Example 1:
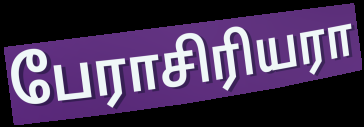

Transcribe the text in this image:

பேராசிரியரா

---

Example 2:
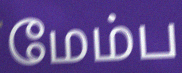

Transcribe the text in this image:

மேம்ப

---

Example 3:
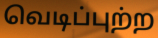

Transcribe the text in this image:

வெடிப்புற்ற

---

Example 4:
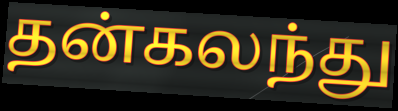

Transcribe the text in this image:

தன்கலந்து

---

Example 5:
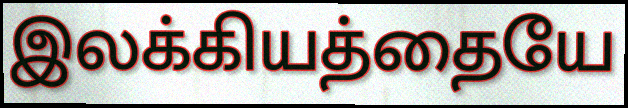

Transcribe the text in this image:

இலக்கியத்தையே